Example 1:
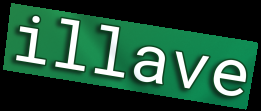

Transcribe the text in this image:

illave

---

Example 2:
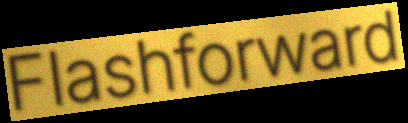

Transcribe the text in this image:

Flashforward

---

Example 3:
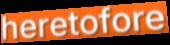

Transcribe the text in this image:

heretofore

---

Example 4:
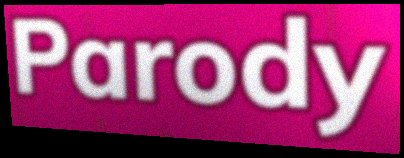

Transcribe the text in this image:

Parody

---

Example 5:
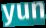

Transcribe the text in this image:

yun